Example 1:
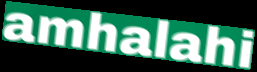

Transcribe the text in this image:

amhalahi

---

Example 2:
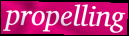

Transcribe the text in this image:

propelling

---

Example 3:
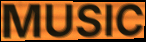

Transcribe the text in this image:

MUSIC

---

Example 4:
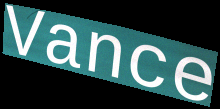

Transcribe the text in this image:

Vance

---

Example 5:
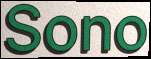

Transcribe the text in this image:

Sono